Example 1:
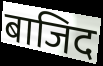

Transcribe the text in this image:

बाजिद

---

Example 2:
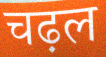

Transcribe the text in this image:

चढ़ल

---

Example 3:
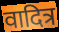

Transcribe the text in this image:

वादित्र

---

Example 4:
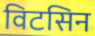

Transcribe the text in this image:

विटसिन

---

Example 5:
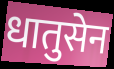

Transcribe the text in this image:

धातुसेन